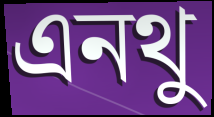
এনথু